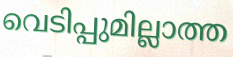
വെടിപ്പുമില്ലാത്ത